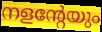
നളന്റേയും